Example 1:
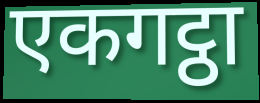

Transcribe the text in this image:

एकगट्ठा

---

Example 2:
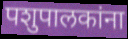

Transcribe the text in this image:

पशुपालकांना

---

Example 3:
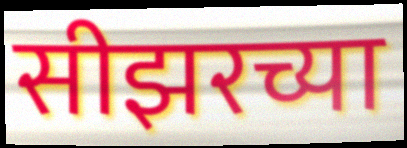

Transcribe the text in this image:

सीझरच्या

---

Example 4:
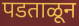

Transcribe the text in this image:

पडताळून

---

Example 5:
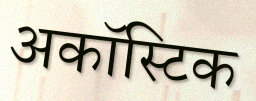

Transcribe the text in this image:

अकॉस्टिक